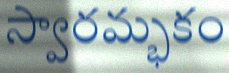
స్వారమ్భకం